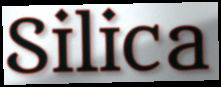
Silica